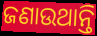
ଜଣାଉଥାନ୍ତି